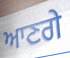
ਆਣਗੇ